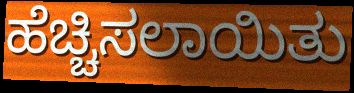
ಹೆಚ್ಚಿಸಲಾಯಿತು